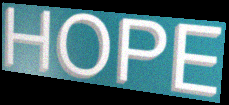
HOPE